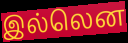
இல்லென